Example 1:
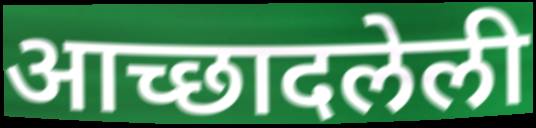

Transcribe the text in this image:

आच्छादलेली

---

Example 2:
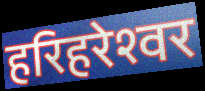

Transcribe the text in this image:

हरिहरेश्वर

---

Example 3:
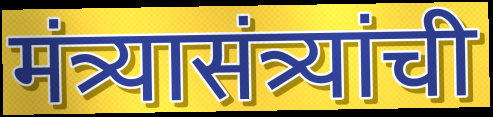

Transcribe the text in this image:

मंत्र्यासंत्र्यांची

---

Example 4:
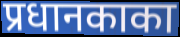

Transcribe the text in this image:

प्रधानकाका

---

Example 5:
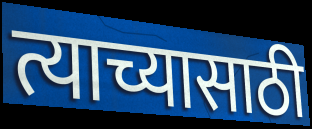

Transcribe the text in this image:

त्याच्यासाठी